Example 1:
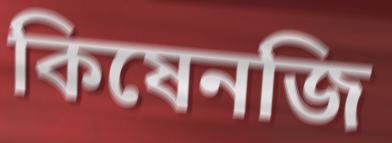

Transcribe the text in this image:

কিষেনজি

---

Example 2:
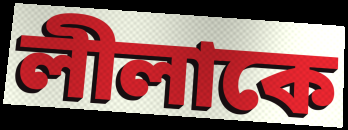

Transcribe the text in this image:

লীলাকে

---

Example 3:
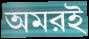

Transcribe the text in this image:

অমরই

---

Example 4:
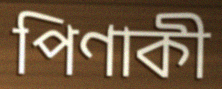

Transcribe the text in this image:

পিণাকী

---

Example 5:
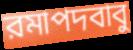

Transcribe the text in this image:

রমাপদবাবু